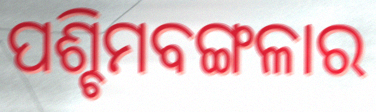
ପଶ୍ଚିମବଙ୍ଗଳାର